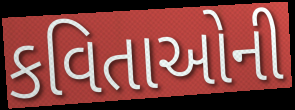
કવિતાઓની